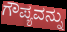
ಗೌಪ್ಯವನ್ನು